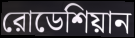
রোডেশিয়ান